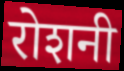
रोशनी